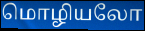
மொழியலோ